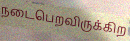
நடைபெறவிருக்கிற